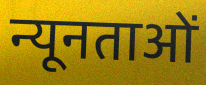
न्यूनताओं